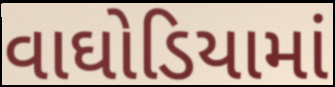
વાઘોડિયામાં